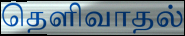
தெளிவாதல்